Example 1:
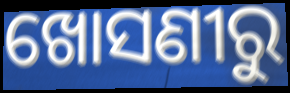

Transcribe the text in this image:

ଖୋସଣୀରୁ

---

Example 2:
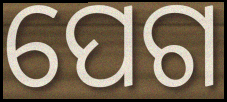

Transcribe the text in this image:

ପେଗ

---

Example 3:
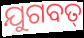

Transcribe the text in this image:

ଯୁଗବତ୍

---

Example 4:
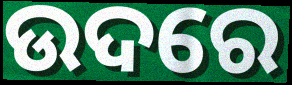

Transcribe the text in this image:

ଉଦରେ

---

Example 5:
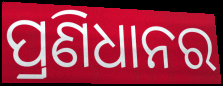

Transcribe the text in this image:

ପ୍ରଣିଧାନର